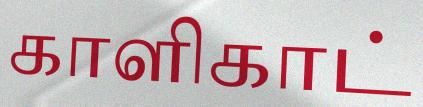
காளிகாட்